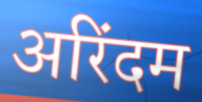
अरिंदम